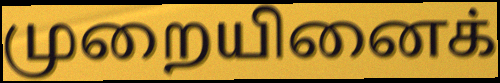
முறையினைக்